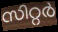
സിറ്റർ